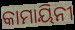
କାମାୟିନୀ